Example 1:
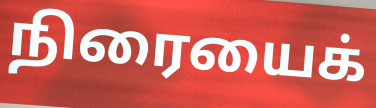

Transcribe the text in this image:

நிரையைக்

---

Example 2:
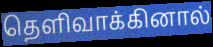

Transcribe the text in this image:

தெளிவாக்கினால்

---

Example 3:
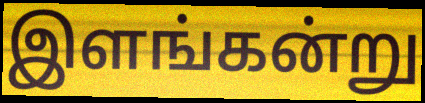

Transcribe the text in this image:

இளங்கன்று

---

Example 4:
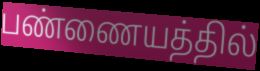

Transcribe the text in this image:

பண்ணையத்தில்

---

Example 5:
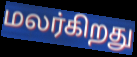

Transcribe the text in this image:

மலர்கிறது